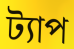
ট্যাপ